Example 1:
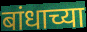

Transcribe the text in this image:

बांधाच्या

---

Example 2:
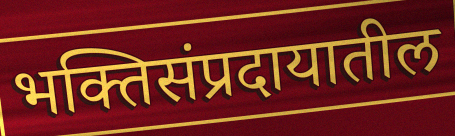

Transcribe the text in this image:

भक्तिसंप्रदायातील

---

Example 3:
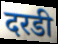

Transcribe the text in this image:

दरडी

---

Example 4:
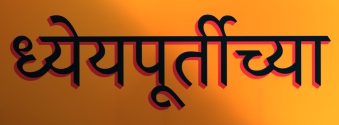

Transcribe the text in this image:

ध्येयपूर्तीच्या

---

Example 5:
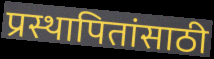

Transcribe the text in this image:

प्रस्थापितांसाठी